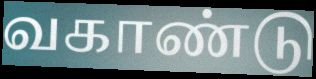
வகாண்டு